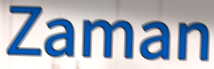
Zaman